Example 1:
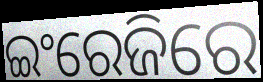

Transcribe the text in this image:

ଇଂରେଜିରେ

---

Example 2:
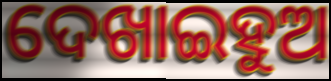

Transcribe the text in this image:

ଦେଖାଇହୁଅ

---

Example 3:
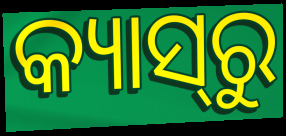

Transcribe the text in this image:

କ୍ୟାସ୍‌ରୁ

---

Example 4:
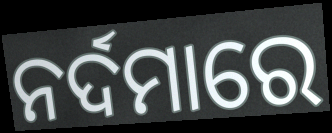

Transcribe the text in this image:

ନର୍ଦମାରେ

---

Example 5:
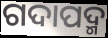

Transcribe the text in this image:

ଗଦାପଦ୍ମ